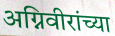
अग्निवीरांच्या